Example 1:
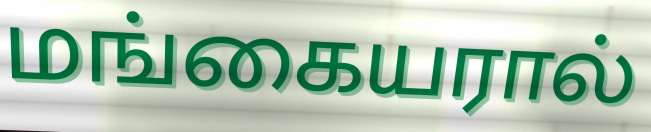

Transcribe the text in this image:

மங்கையரால்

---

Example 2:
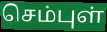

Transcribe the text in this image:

செம்புள்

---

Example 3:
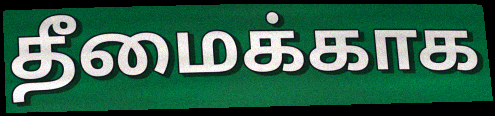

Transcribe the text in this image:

தீமைக்காக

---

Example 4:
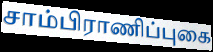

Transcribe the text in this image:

சாம்பிராணிப்புகை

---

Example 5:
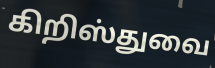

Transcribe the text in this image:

கிறிஸ்துவை